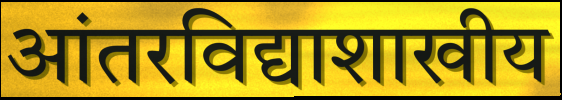
आंतरविद्याशाखीय